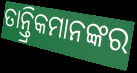
ତାନ୍ତ୍ରିକମାନଙ୍କର